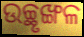
ଉଚ୍ଛୃଙ୍ଖଳ